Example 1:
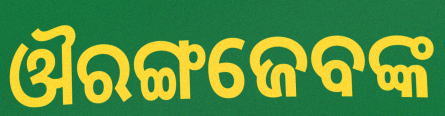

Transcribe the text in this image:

ଔରଙ୍ଗଜେବଙ୍କ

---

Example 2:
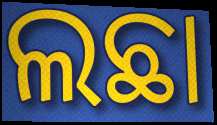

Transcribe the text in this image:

ଲଛା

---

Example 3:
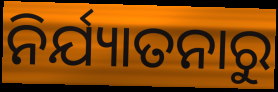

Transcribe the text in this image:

ନିର୍ଯ୍ୟାତନାରୁ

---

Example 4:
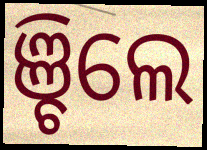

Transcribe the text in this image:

ଞ୍ଚିଲେ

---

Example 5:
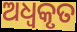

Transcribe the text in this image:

ଅଧ୍ବକୃତ